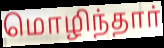
மொழிந்தார்